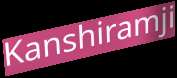
Kanshiramji